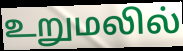
உறுமலில்